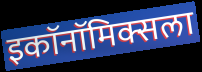
इकॉनॉमिक्सला